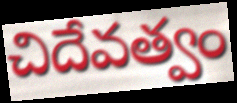
చిదేవత్వం